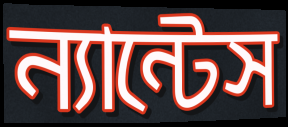
ন্যান্টেস